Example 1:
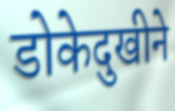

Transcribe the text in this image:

डोकेदुखीने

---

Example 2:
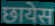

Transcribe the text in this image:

छायेस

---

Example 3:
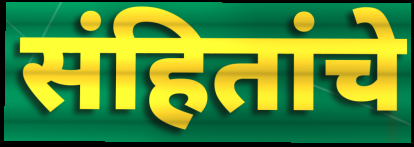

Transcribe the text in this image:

संहितांचे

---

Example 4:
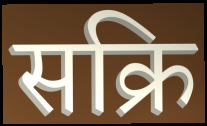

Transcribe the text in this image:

सक्रि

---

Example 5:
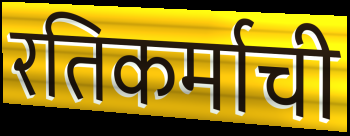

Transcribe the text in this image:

रतिकर्माची